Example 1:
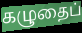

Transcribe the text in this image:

கழுதைப்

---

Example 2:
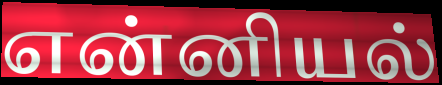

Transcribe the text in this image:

என்னியல்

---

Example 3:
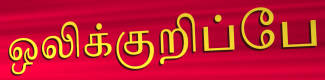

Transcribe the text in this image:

ஒலிக்குறிப்பே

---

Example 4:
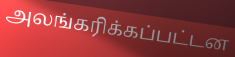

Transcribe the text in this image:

அலங்கரிக்கப்பட்டன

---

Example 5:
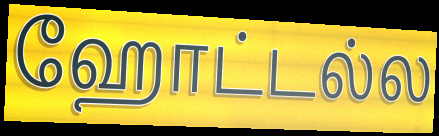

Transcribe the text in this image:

ஹோட்டல்ல